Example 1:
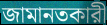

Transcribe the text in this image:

জামানতকারী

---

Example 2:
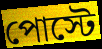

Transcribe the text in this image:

পোস্টে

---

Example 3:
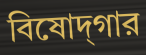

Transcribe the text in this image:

বিষোদ্‌গার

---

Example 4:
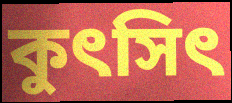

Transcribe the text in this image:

কুৎসিৎ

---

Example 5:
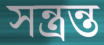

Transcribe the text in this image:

সন্ত্রন্ত